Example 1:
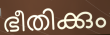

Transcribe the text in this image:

ഭീതിക്കും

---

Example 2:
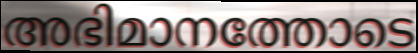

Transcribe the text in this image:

അഭിമാനത്തോടെ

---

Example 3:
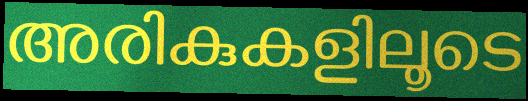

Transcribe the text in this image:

അരികുകളിലൂടെ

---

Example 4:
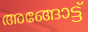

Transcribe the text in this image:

അങ്ങോട്ട്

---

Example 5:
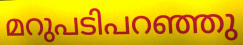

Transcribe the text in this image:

മറുപടിപറഞ്ഞു